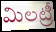
మిలట్రీ